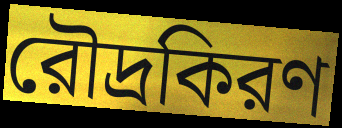
রৌদ্রকিরণ